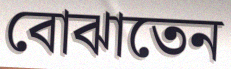
বোঝাতেন